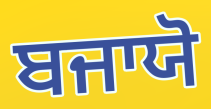
ਬਜਾਯੋ